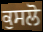
ਕੁਸਲੋ